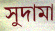
সুদামা